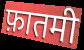
फ़ातमी